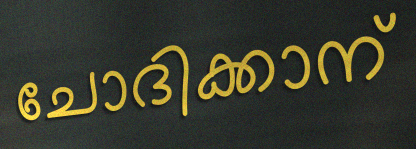
ചോദിക്കാന്